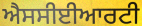
ਐਸਸੀਈਆਰਟੀ